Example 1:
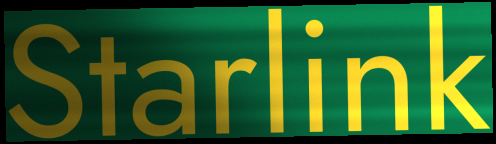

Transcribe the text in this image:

Starlink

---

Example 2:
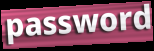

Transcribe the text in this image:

password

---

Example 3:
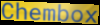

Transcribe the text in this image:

Chembox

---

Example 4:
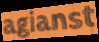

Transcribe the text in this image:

agianst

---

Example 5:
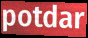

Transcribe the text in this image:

potdar